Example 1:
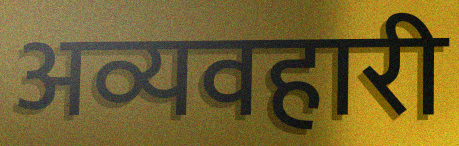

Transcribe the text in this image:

अव्यवहारी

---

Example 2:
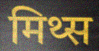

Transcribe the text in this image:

मिथ्स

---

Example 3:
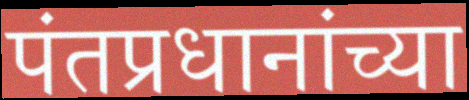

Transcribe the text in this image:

पंतप्रधानांच्या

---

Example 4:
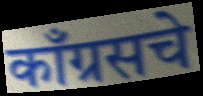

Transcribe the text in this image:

काँग्रसचे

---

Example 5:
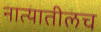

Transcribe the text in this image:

नात्यातीलच